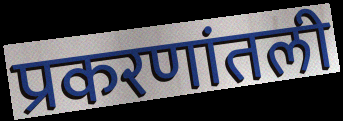
प्रकरणांतली